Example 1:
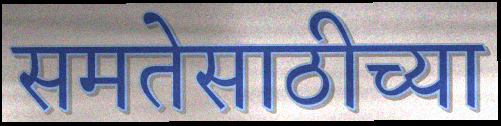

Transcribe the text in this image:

समतेसाठीच्या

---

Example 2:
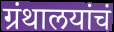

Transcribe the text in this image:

ग्रंथालयांचं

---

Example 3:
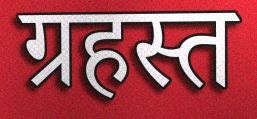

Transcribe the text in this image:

ग्रहस्त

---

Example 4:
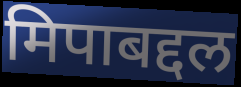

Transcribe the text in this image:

मिपाबद्दल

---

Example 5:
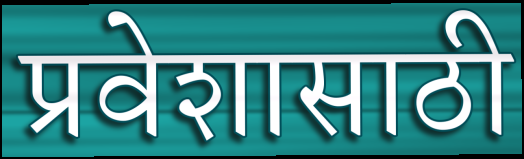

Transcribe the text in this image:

प्रवेशासाठी